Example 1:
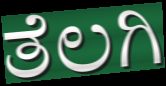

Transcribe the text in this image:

ತೆಲಗಿ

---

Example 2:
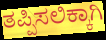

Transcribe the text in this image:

ತಪ್ಪಿಸಲಿಕ್ಕಾಗಿ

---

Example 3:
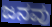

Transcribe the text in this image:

ಜನವು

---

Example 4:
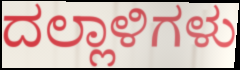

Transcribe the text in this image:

ದಲ್ಲಾಳಿಗಳು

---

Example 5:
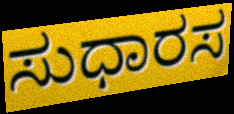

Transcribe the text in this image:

ಸುಧಾರಸ